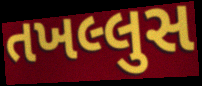
તખલ્લુસ